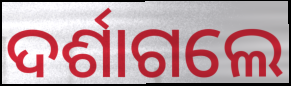
ଦର୍ଶାଗଲେ